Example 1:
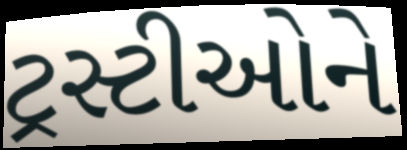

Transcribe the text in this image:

ટ્રસ્ટીઓને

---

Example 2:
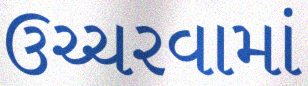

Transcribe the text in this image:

ઉચ્ચરવામાં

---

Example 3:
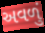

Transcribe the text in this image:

અવળું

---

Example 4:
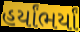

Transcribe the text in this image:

હર્યાંભર્યાં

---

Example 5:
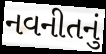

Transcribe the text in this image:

નવનીતનું